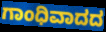
ಗಾಂಧಿವಾದದ